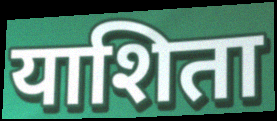
याशिता